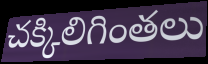
చక్కిలిగింతలు